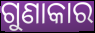
ଗୁଣାକାର